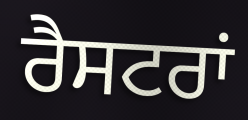
ਰੈਸਟਰਾਂ